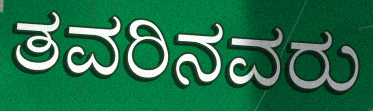
ತವರಿನವರು